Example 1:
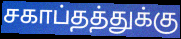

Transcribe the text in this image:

சகாப்தத்துக்கு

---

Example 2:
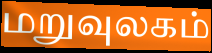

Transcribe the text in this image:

மறுவுலகம்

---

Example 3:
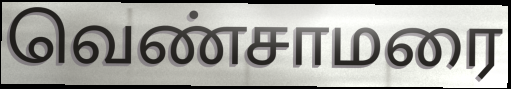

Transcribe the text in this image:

வெண்சாமரை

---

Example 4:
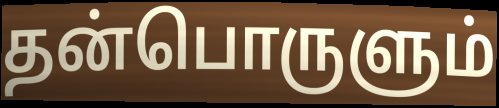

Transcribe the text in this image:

தன்பொருளும்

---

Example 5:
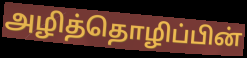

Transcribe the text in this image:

அழித்தொழிப்பின்